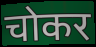
चोकर